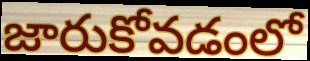
జారుకోవడంలో